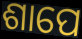
ଶାପେ